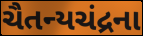
ચૈતન્યચંદ્રના